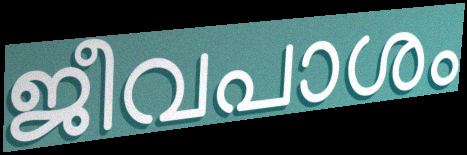
ജീവപാശം